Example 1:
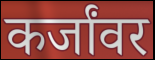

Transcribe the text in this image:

कर्जांवर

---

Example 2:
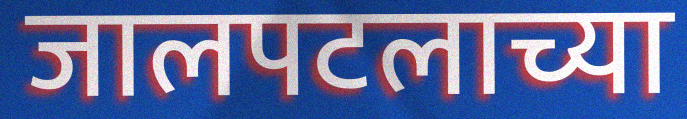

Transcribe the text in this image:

जालपटलाच्या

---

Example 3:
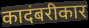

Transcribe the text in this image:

कादंबरीकार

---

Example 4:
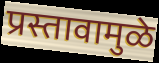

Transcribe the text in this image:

प्रस्तावामुळे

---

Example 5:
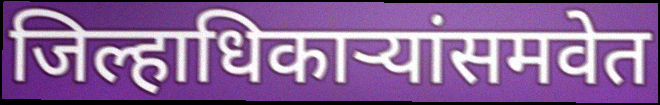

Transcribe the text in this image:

जिल्हाधिकाऱ्यांसमवेत